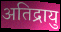
अतिद्रायु